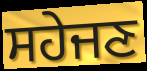
ਸਹੇਜਣ